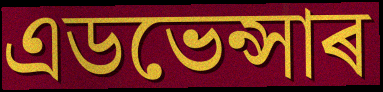
এডভেন্সাৰ